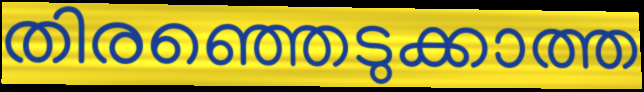
തിരഞ്ഞെടുക്കാത്ത